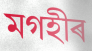
মগহীৰ